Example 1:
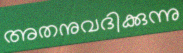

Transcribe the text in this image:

അതനുവദിക്കുന്നു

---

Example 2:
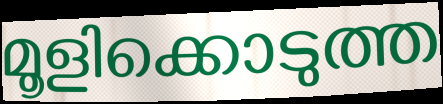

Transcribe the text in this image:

മൂളിക്കൊടുത്ത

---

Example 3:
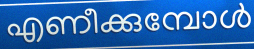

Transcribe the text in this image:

എണീക്കുമ്പോൾ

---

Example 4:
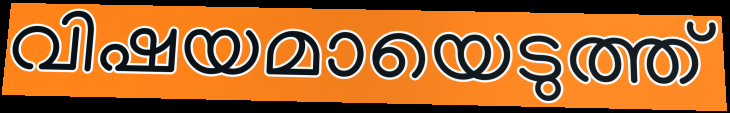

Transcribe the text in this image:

വിഷയമായെടുത്ത്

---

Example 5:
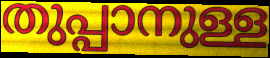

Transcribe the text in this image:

തുപ്പാനുള്ള